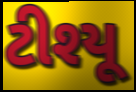
ટીશ્યૂ